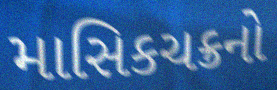
માસિકચક્રનો